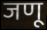
जणू